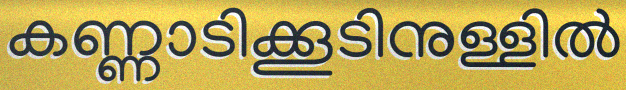
കണ്ണാടിക്കൂടിനുള്ളിൽ